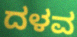
ದಳವ